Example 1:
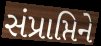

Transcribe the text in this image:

સંપ્રાપ્તિને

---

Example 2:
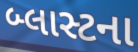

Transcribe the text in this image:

બ્લાસ્ટના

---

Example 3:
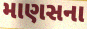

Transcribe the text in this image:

માણસના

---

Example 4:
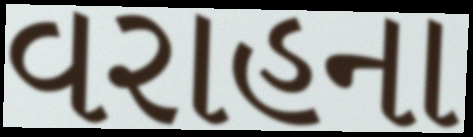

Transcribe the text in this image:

વરાહના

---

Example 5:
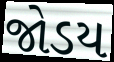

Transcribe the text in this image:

જોડય